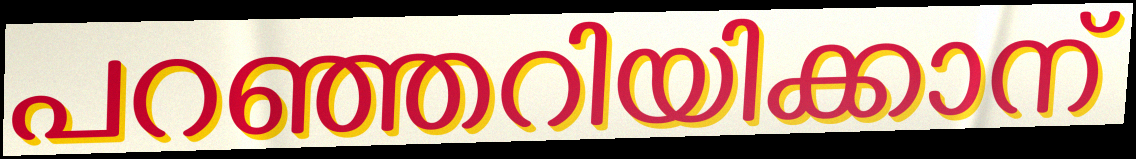
പറഞ്ഞറിയിക്കാന്